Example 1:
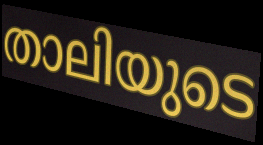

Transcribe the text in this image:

താലിയുടെ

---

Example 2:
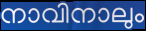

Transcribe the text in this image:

നാവിനാലും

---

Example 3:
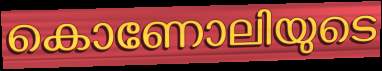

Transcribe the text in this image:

കൊണോലിയുടെ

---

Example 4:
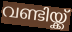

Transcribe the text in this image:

വണ്ടിയ്ക്ക്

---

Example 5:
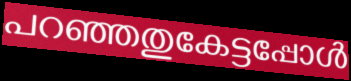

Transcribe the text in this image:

പറഞ്ഞതുകേട്ടപ്പോൾ